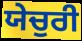
ਯੇਚੁਰੀ